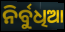
ନିର୍ବୁଧିଆ